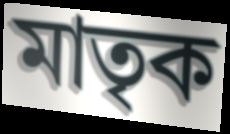
মাতৃক